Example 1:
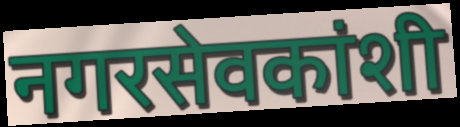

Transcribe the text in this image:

नगरसेवकांशी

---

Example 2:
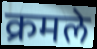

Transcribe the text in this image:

क्रमले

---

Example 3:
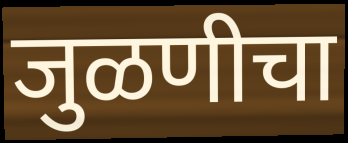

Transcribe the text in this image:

जुळणीचा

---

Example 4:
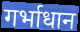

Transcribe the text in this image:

गर्भाधान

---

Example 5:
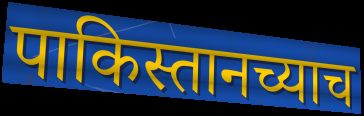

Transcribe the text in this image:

पाकिस्तानच्याच